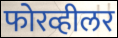
फोरव्हीलर